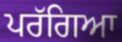
ਪਰੱਗਿਆ